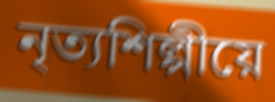
নৃত্যশিল্পীয়ে